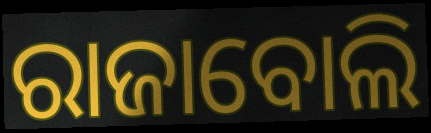
ରାଜାବୋଲି